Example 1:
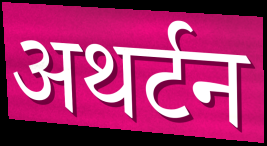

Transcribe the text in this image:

अथर्टन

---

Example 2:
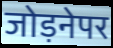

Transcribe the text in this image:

जोड़नेपर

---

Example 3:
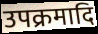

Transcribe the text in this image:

उपक्रमादि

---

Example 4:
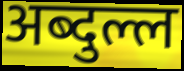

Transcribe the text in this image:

अब्दुल्ल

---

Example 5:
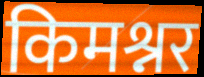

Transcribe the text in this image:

किमश्नर